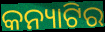
କନ୍ୟାଟିର